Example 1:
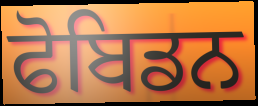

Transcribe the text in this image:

ਫੋਬਿਡਨ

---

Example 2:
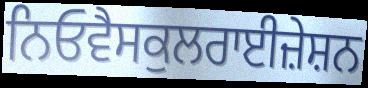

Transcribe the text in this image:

ਨਿਓਵੈਸਕੁਲਰਾਈਜ਼ੇਸ਼ਨ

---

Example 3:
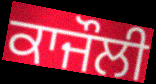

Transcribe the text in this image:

ਕਾਜੌਲੀ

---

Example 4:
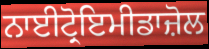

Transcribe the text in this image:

ਨਾਈਟ੍ਰੋਇਮੀਡਾਜ਼ੋਲ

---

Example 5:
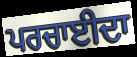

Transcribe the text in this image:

ਪਰਚਾਈਦਾ